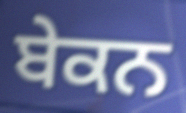
ਬੇਕਨ